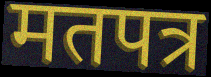
मतपत्र